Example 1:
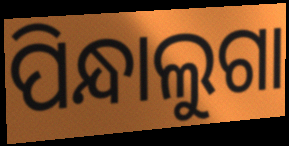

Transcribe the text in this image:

ପିନ୍ଧାଲୁଗା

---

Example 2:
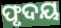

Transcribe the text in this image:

ଫୃଦୟ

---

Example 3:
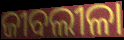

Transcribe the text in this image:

ଜୀବଲୀଳା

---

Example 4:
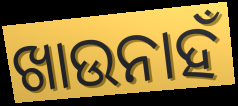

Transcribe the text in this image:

ଖାଉନାହଁ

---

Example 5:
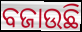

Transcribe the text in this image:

ବଜାଉଛି